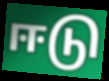
ஈடு